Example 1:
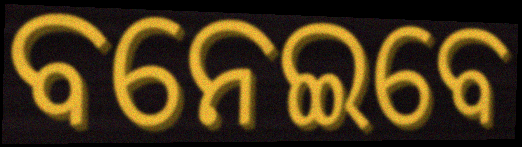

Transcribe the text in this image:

ବନେଇବେ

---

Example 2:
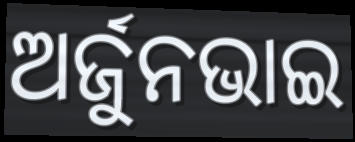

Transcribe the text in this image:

ଅର୍ଜୁନଭାଇ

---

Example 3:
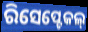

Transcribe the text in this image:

ରିସେପ୍ଟେକଲ୍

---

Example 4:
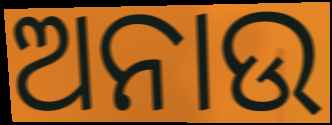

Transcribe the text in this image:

ଅନାଉ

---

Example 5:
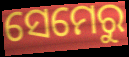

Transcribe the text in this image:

ସେମେରୁ